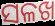
ସଳଖ